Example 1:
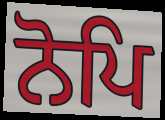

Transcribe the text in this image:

ਨੋਪਿ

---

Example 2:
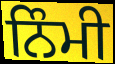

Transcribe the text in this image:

ਨਿੰਮੀ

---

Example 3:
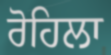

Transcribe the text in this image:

ਰੋਹਿਲਾ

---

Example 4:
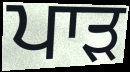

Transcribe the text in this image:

ਪਾੜ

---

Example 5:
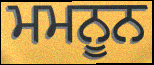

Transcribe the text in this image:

ਮਮਨੂਨ